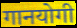
गानयोगी